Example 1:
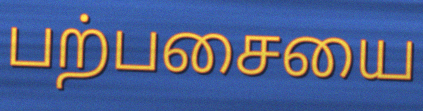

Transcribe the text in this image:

பற்பசையை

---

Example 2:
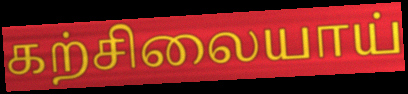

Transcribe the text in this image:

கற்சிலையாய்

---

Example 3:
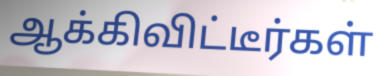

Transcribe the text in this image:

ஆக்கிவிட்டீர்கள்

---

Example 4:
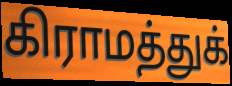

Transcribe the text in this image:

கிராமத்துக்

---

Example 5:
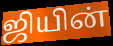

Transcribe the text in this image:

ஜியின்